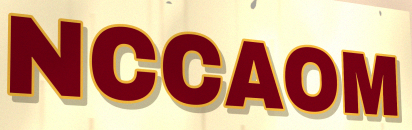
NCCAOM